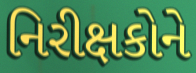
નિરીક્ષકોને